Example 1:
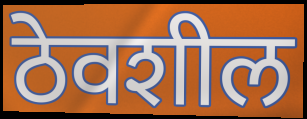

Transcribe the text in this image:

ठेवशील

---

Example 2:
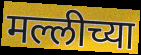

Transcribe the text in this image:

मल्लीच्या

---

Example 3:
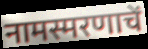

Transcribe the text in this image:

नामस्मरणाचें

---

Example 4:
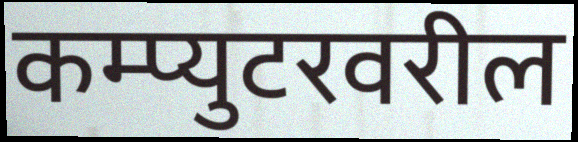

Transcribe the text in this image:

कम्प्युटरवरील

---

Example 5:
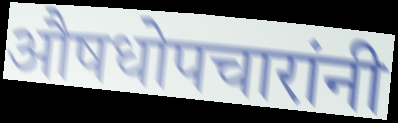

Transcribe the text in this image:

औषधोपचारांनी